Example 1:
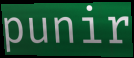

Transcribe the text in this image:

punir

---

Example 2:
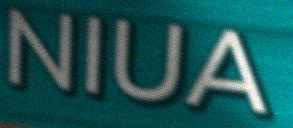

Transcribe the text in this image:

NIUA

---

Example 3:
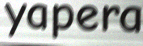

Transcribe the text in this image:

yapera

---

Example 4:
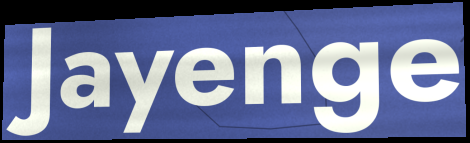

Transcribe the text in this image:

Jayenge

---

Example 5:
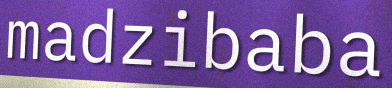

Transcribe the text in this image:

madzibaba